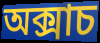
অক্সাচ